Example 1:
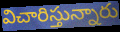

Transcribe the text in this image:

విచారిస్తున్నారు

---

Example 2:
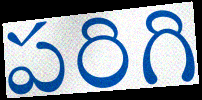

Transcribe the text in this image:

పరిగి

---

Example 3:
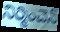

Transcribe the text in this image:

నిర్మించెన్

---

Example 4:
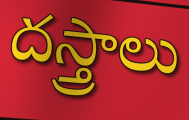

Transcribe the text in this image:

దస్త్రాలు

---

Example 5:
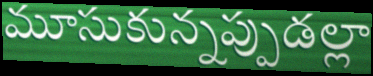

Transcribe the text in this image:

మూసుకున్నప్పుడల్లా